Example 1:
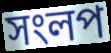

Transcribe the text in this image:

সংলপ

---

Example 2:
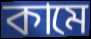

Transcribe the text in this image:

কামে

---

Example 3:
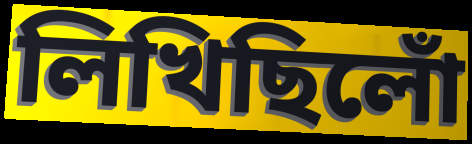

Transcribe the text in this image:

লিখিছিলোঁ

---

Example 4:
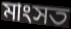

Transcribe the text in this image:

মাংসত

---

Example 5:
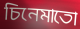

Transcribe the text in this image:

চিনেমাতো